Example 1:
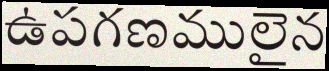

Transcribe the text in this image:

ఉపగణములైన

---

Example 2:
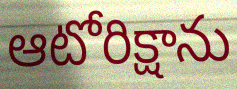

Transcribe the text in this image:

ఆటోరిక్షాను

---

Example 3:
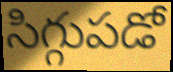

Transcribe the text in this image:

సిగ్గుపడో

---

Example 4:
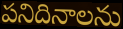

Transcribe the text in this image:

పనిదినాలను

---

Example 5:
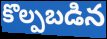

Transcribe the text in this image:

కొల్పబడిన